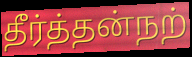
தீர்த்தன்நற்